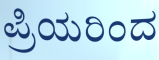
ಪ್ರಿಯರಿಂದ